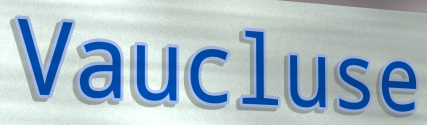
Vaucluse